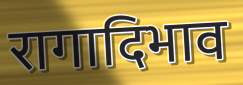
रागादिभाव